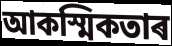
আকস্মিকতাৰ